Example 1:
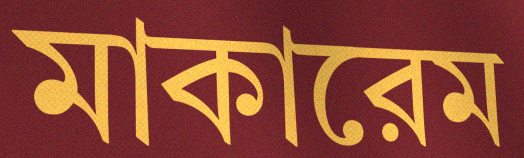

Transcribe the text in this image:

মাকারেম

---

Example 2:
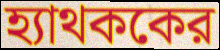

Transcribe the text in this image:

হ্যাথককের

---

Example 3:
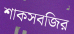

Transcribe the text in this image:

শাকসবজির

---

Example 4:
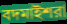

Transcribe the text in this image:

বদমাইশরা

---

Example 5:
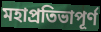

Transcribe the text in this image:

মহাপ্রতিভাপূর্ণ